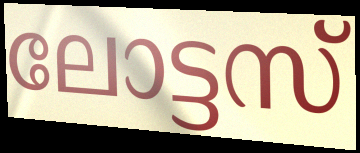
ലോട്ടസ്